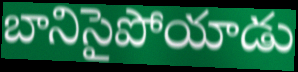
బానిసైపోయాడు